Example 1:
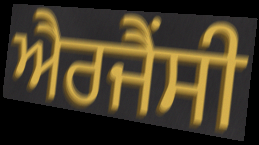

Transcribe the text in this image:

ਐਰਜੈਂਸੀ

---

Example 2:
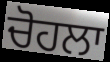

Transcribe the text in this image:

ਚੋਹਲਾ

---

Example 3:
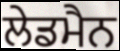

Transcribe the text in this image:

ਲੇਡਮੈਨ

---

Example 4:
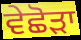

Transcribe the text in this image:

ਵੇਛੋੜਾ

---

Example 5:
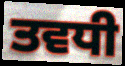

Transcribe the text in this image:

ਤਵਧੀ